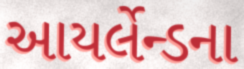
આયર્લેન્ડના